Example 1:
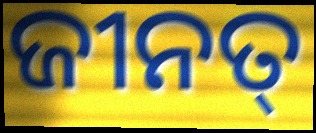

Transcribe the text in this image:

ଜୀନତ୍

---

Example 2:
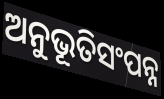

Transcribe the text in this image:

ଅନୁଭୂତିସଂପନ୍ନ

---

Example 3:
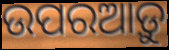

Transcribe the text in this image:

ଉପରଆଡ଼ୁ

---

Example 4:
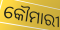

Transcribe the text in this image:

କୌମାରୀ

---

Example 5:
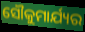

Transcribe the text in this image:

ସୌକୁମାର୍ଯ୍ୟର